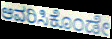
ಆವರಿಸಿಕೊಂಡೇ